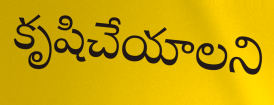
కృషిచేయాలని